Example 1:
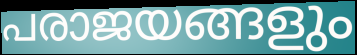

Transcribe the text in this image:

പരാജയങ്ങളും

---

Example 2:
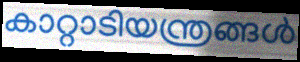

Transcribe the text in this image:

കാറ്റാടിയന്ത്രങ്ങൾ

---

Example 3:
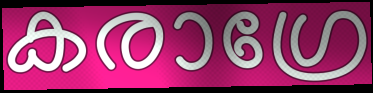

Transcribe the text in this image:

കരാഗ്രേ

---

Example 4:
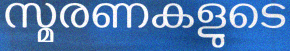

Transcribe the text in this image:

സ്മരണകളുടെ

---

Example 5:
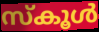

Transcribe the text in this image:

സ്കൂൾ